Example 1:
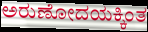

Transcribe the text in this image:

ಅರುಣೋದಯಕ್ಕಿಂತ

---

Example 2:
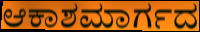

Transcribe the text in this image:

ಆಕಾಶಮಾರ್ಗದ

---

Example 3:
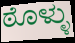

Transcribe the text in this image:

ಠೊಳ್ಳು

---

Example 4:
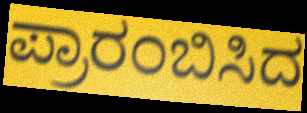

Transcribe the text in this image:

ಪ್ರಾರಂಬಿಸಿದ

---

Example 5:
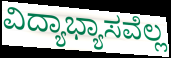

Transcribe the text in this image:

ವಿದ್ಯಾಭ್ಯಾಸವೆಲ್ಲ